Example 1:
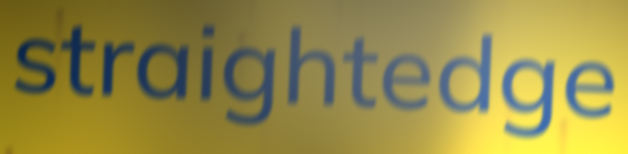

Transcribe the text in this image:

straightedge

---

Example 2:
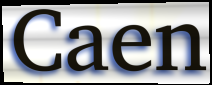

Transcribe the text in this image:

Caen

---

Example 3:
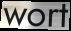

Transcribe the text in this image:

wort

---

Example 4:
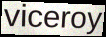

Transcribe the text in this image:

viceroy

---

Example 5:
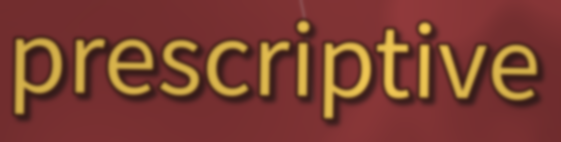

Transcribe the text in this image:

prescriptive